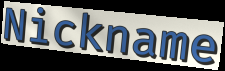
Nickname